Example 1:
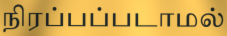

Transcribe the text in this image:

நிரப்பப்படாமல்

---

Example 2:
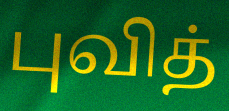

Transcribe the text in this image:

புவித்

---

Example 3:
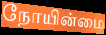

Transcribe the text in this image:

நோயின்மை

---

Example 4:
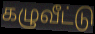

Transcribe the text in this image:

கழுவீட்டு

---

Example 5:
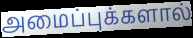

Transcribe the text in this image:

அமைப்புக்களால்